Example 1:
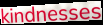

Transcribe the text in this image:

kindnesses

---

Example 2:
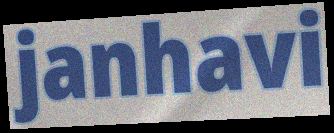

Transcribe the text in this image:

janhavi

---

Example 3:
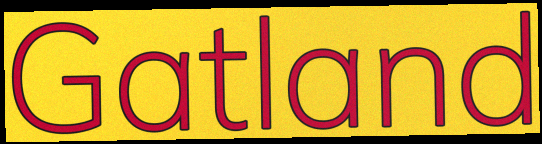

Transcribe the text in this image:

Gatland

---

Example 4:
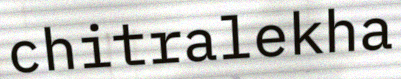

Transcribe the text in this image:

chitralekha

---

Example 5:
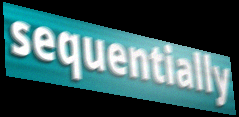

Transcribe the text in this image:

sequentially